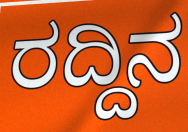
ರದ್ದಿನ